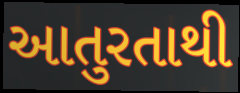
આતુરતાથી